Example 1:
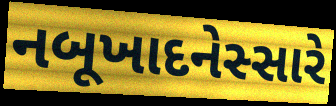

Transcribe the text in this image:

નબૂખાદનેસ્સારે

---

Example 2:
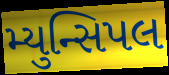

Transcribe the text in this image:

મ્યુન્સિપલ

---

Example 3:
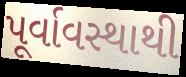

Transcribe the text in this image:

પૂર્વાવસ્થાથી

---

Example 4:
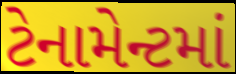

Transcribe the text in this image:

ટેનામેન્ટમાં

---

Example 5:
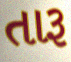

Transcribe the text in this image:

તારૂ